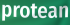
protean